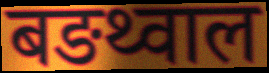
बङथ्वाल